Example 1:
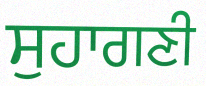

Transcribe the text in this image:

ਸੁਹਾਗਣੀ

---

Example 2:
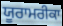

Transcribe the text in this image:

ਯੂਰਾਮਰੀਕਾ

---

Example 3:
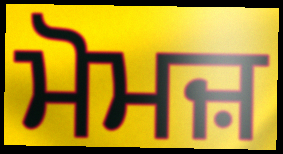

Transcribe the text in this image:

ਮੋਮਜ਼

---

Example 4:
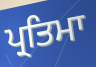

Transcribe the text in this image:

ਪ੍ਰਤਿਮਾ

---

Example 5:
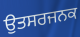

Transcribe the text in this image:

ਉਤਸਰਜਨਕ